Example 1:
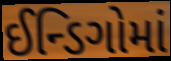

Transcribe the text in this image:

ઈન્ડિગોમાં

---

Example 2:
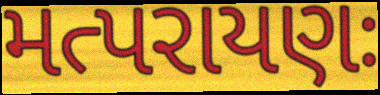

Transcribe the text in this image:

મત્પરાયણઃ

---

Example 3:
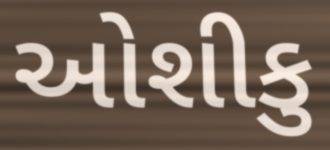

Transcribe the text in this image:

ઓશીકુ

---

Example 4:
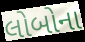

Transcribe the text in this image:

લોબોના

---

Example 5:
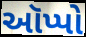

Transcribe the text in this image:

ઑપ્પો